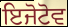
ਇਜੋਟੋਵ